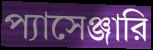
প্যাসেঞ্জারি